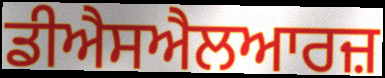
ਡੀਐਸਐਲਆਰਜ਼